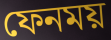
ফেনময়